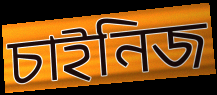
চাইনিজ